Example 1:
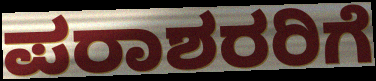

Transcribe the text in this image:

ಪರಾಶರರಿಗೆ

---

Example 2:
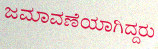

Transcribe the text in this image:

ಜಮಾವಣೆಯಾಗಿದ್ದರು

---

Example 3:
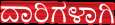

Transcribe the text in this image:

ದಾರಿಗಳಾಗಿ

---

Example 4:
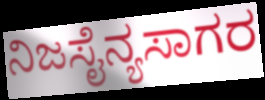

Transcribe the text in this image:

ನಿಜಸೈನ್ಯಸಾಗರ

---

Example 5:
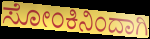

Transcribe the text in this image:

ಸೋಂಕಿನಿಂದಾಗಿ